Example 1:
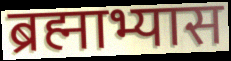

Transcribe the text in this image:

ब्रह्माभ्यास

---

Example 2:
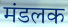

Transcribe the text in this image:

मंडलक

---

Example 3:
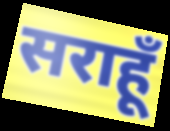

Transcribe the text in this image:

सराहूँ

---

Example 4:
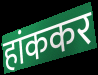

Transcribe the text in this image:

हांककर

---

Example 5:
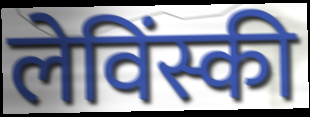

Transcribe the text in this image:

लेविंस्की